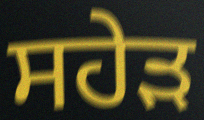
ਸਹੇੜ